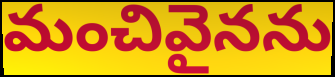
మంచివైనను